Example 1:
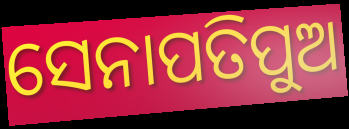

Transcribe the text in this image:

ସେନାପତିପୁଅ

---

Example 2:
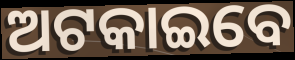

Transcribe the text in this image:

ଅଟକାଇବେ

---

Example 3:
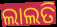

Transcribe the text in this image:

ଲାଲତି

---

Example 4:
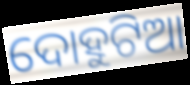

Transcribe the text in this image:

ଦୋହୁଟିଆ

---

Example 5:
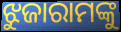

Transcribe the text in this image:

ଝୁଜାରାମଙ୍କୁ